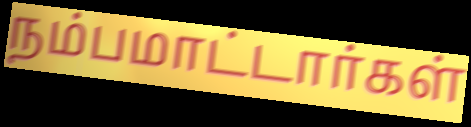
நம்பமாட்டார்கள்